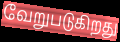
வேறுபடுகிறது